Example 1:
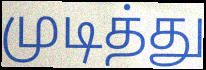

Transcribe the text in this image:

முடித்து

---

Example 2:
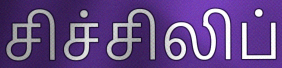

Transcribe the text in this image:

சிச்சிலிப்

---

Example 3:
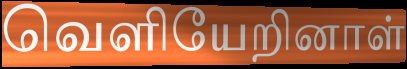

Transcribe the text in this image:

வெளியேறினாள்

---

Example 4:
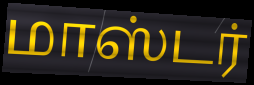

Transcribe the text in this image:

மாஸ்டர்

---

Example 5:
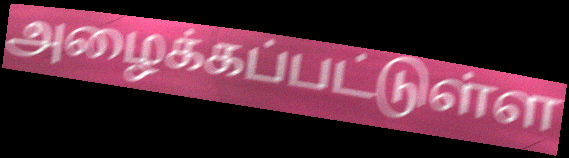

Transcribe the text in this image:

அழைக்கப்பட்டுள்ள